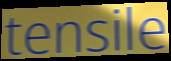
tensile